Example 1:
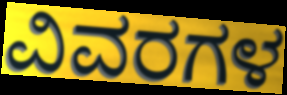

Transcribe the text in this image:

ವಿವರಗಳ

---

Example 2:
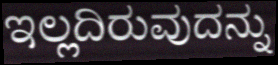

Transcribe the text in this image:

ಇಲ್ಲದಿರುವುದನ್ನು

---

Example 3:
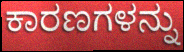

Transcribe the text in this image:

ಕಾರಣಗಳನ್ನು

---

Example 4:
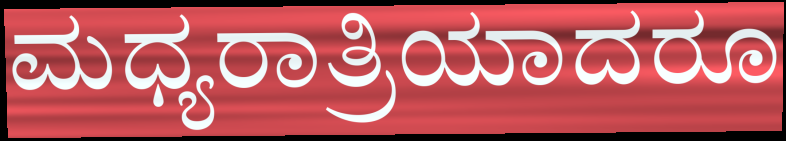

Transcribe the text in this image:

ಮಧ್ಯರಾತ್ರಿಯಾದರೂ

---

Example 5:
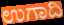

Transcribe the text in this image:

ಉಗಾದಿ